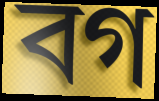
বগ